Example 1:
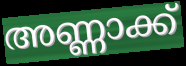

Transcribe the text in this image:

അണ്ണാക്ക്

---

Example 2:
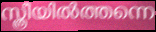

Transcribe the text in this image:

സ്ത്രീയിൽത്തന്നെ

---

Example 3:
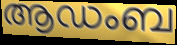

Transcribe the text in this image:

ആഡംബ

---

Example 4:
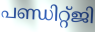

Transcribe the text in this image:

പണ്ഡിറ്റ്ജി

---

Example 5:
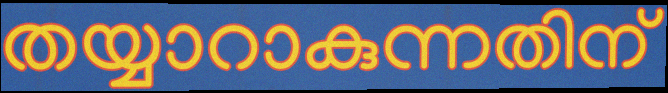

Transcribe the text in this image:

തയ്യാറാകുന്നതിന്